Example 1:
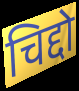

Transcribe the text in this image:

चिद्दो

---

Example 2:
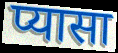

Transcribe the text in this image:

प्यासा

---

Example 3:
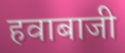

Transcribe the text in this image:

हवाबाजी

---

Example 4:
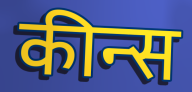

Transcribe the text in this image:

कीन्स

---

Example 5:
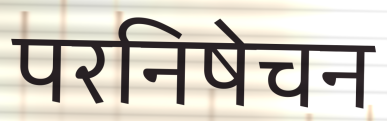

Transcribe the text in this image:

परनिषेचन